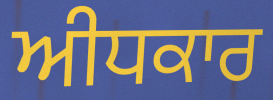
ਅੀਧਕਾਰ